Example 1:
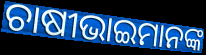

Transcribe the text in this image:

ଚାଷୀଭାଇମାନଙ୍କ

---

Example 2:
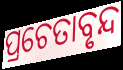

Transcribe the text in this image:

ପ୍ରଚେତାବୃନ୍ଦ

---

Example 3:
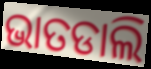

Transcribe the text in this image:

ଭାତଡାଲି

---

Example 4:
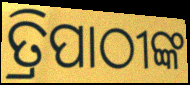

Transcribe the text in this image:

ତ୍ରିପାଠୀଙ୍କ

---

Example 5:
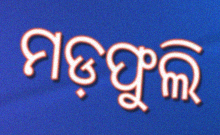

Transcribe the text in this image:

ମଡ଼ଫୁଲି